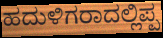
ಹದುಳಿಗರಾದಲ್ಲಿಪ್ಪ